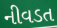
નીવડત